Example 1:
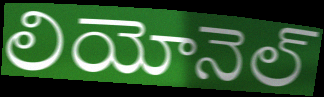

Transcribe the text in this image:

లియోనెల్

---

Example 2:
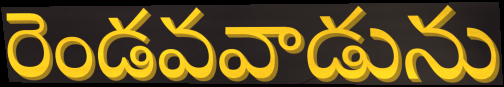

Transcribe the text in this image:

రెండవవాడును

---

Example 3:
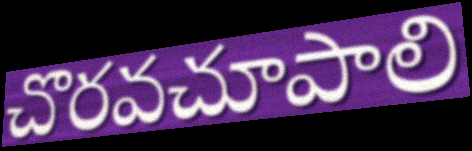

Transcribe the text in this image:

చొరవచూపాలి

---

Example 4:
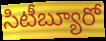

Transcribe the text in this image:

సిటీబ్యూరో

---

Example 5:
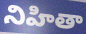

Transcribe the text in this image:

నిహితా